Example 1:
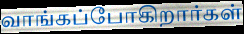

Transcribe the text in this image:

வாங்கப்போகிறார்கள்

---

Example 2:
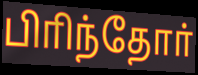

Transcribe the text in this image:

பிரிந்தோர்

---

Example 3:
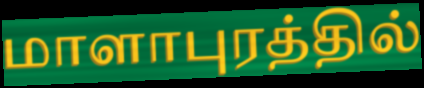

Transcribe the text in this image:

மாளாபுரத்தில்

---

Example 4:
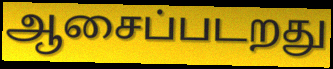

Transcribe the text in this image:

ஆசைப்படறது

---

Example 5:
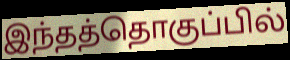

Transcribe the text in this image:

இந்தத்தொகுப்பில்